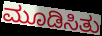
ಮೂಡಿಸಿತು